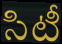
సిటీ